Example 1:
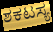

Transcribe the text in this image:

ಶಕಟಸ್ಯ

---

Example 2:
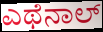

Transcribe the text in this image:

ಎಥೆನಾಲ್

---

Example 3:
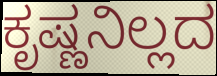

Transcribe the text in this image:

ಕೃಷ್ಣನಿಲ್ಲದ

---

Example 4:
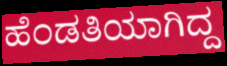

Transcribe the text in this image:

ಹೆಂಡತಿಯಾಗಿದ್ದ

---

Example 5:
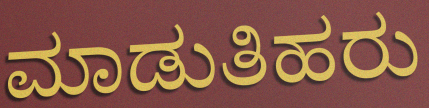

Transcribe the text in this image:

ಮಾಡುತಿಹರು